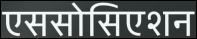
एससोसिएशन